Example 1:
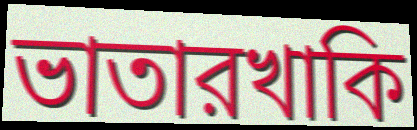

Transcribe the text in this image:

ভাতারখাকি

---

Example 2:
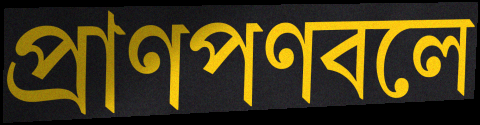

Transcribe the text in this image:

প্রাণপণবলে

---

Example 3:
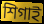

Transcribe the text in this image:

শিগাই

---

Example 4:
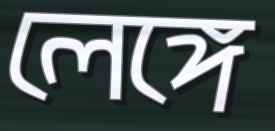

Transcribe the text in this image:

লেঙ্গে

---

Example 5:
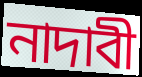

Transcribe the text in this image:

নাদাবী